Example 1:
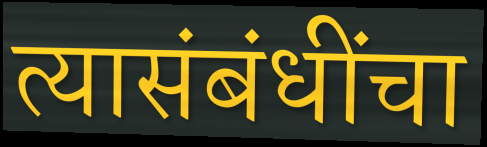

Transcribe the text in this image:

त्यासंबंधींचा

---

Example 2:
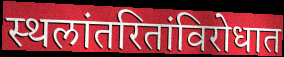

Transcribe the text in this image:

स्थलांतरितांविरोधात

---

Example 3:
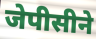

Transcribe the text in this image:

जेपीसीने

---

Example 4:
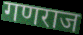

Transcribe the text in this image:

गणराज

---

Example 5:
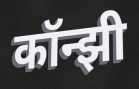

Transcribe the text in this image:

कॉन्झी